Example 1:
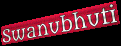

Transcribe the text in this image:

Swanubhuti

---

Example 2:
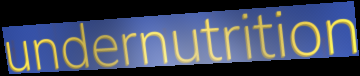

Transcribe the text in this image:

undernutrition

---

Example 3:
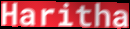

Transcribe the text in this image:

Haritha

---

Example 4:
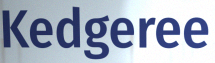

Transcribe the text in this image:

Kedgeree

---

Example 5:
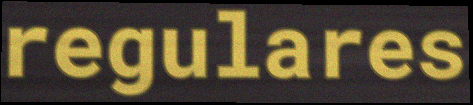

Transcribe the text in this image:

regulares